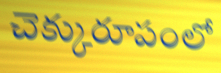
చెక్కురూపంలో